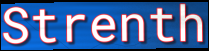
Strenth